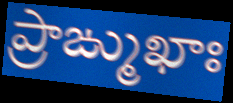
ప్రాఙ్ముఖాః